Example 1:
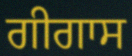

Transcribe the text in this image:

ਗੀਗਾਸ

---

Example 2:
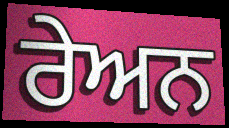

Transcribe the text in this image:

ਰੇਅਨ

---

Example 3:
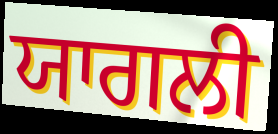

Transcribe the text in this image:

ਯਾਗਲੀ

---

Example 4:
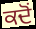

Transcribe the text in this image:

ਕਦੋਂ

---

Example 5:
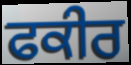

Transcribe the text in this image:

ਫਕੀਰ